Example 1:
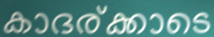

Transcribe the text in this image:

കാദര്ക്കാടെ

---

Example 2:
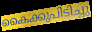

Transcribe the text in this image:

കൈക്കുപിടിച്ചു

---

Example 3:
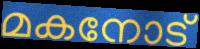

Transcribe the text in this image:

മകനോട്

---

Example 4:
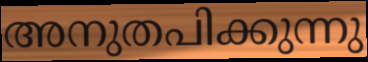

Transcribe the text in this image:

അനുതപിക്കുന്നു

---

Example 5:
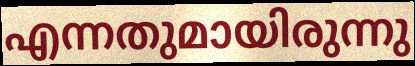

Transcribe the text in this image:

എന്നതുമായിരുന്നു